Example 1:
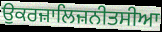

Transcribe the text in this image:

ਉਕਰਜ਼ਾਲਿਜ਼ਨੀਤਸੀਆ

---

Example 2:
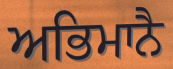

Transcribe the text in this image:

ਅਭਿਮਾਨੈ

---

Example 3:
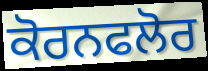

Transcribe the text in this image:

ਕੋਰਨਫਲੋਰ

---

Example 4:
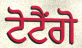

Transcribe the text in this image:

ਟੋਟੈਂਗੋ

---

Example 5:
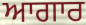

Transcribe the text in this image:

ਆਗਾਰ